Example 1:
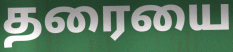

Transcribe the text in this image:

தரையை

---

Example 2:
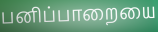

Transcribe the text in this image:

பனிப்பாறையை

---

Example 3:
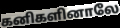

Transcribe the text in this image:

கனிகளினாலே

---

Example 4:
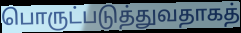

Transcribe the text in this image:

பொருட்படுத்துவதாகத்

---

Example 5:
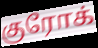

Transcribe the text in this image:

குரோக்